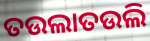
ତଉଲାତଉଲି